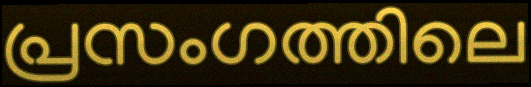
പ്രസംഗത്തിലെ